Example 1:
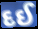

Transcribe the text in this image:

દઈ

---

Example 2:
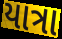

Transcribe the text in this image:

યાત્રા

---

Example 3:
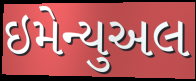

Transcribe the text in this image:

ઇમેન્યુઅલ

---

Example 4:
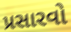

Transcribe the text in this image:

પ્રસારવો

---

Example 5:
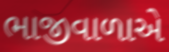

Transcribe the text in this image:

ભાજીવાળાએ